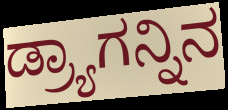
ಡ್ರ್ಯಾಗನ್ನಿನ